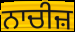
ਨਾਚੀਜ਼